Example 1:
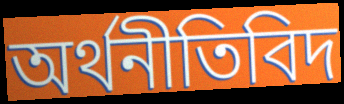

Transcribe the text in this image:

অৰ্থনীতিবিদ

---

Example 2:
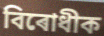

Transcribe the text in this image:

বিৰোধীক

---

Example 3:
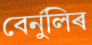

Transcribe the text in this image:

বেৰ্নুলিৰ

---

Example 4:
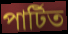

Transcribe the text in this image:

পাৰ্টিত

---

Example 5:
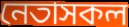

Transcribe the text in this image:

নেতাসকল